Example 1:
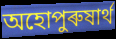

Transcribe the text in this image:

অহোপুৰুষাৰ্থ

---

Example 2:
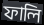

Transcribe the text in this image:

ফালি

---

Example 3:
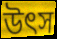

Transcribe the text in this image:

উৎস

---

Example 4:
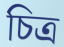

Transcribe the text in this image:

চিত্ৰ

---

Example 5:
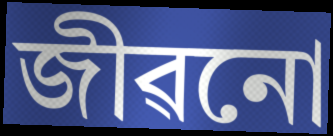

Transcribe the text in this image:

জীৱনো